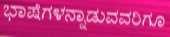
ಭಾಷೆಗಳನ್ನಾಡುವವರಿಗೂ